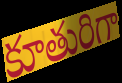
కూతురిగా